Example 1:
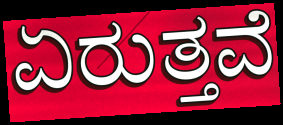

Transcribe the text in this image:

ಏರುತ್ತವೆ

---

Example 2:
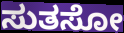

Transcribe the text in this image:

ಸುತಸೋ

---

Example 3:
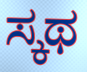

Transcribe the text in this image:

ಸ್ಕಥ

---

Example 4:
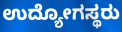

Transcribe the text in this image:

ಉದ್ಯೋಗಸ್ಥರು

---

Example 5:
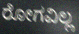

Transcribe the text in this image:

ರೋಗವಿಲ್ಲ